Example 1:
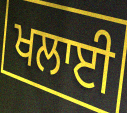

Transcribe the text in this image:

ਖਲਾਈ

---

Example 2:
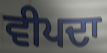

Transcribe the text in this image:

ਵੀਪਦਾ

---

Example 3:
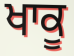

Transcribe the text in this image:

ਖਾਕੂ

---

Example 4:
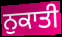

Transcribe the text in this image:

ਨੁਕਾਤੀ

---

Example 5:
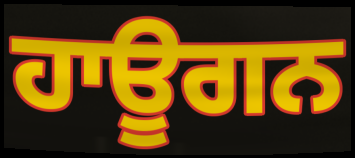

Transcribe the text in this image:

ਹਾਊਗਨ